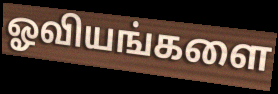
ஓவியங்களை